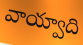
వాయ్వాది